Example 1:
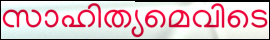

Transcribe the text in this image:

സാഹിത്യമെവിടെ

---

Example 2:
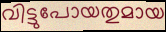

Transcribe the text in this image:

വിട്ടുപോയതുമായ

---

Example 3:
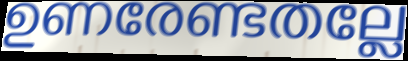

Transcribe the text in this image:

ഉണരേണ്ടതല്ലേ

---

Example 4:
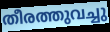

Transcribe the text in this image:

തീരത്തുവച്ചു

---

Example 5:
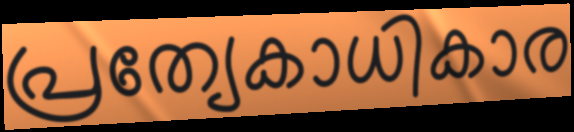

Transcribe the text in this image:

പ്രത്യേകാധികാര